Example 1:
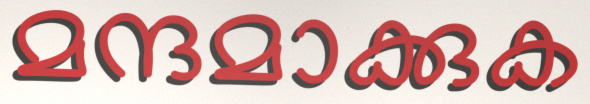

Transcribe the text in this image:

മന്ദമാക്കുക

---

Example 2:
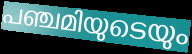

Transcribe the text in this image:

പഞ്ചമിയുടെയും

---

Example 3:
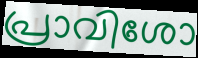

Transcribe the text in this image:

പ്രാവിശോ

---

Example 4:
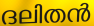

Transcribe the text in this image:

ദലിതൻ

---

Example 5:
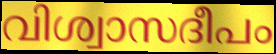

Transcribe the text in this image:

വിശ്വാസദീപം